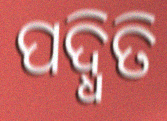
ପଦ୍ଧିତି